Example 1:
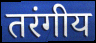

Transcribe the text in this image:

तरंगीय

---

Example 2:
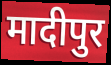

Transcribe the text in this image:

मादीपुर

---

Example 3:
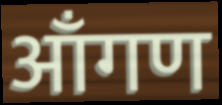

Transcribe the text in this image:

आँगण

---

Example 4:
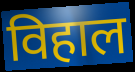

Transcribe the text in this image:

विहाल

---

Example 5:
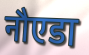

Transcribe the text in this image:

नौएडा